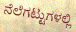
ನೆಲೆಗಟ್ಟುಗಳಲ್ಲಿ